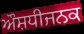
ਔਸ਼ਧੀਜਨਕ